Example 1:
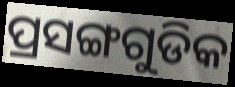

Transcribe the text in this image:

ପ୍ରସଙ୍ଗଗୁଡିକ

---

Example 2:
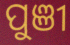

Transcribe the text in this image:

ପୁଞୀ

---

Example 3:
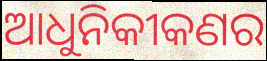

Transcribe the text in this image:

ଆଧୁନିକୀକଣର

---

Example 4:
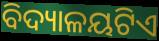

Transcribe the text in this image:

ବିଦ୍ୟାଳୟଟିଏ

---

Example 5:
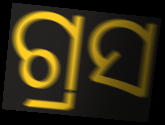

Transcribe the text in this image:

ଗ୍ରସ